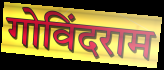
गोविंदराम